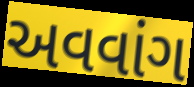
અવવાંગ